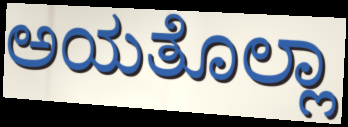
ಅಯತೊಲ್ಲಾ